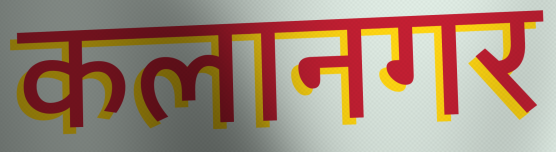
कलानगर